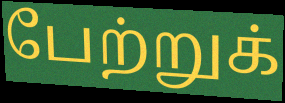
பேற்றுக்